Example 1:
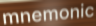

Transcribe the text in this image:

mnemonic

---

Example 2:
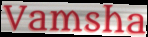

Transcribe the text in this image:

Vamsha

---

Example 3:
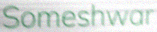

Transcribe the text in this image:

Someshwar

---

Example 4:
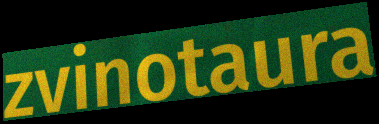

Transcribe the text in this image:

zvinotaura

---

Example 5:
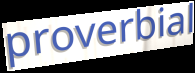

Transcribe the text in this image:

proverbial